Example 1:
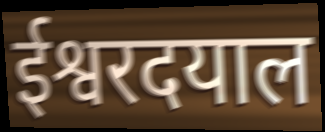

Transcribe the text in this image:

ईश्वरदयाल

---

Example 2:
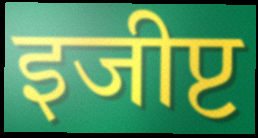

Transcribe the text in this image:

इजीप्ट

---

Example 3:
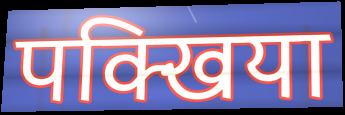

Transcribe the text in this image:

पक्खिया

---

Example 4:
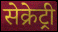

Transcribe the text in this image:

सेक्रेट्री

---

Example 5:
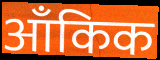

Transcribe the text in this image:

आँकिक